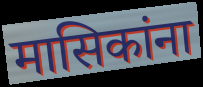
मासिकांना